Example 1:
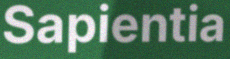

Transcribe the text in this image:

Sapientia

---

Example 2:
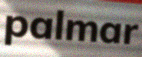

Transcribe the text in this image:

palmar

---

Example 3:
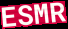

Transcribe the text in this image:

ESMR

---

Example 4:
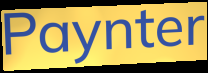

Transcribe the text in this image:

Paynter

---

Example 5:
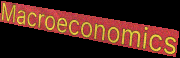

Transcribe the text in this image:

Macroeconomics